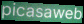
picasaweb